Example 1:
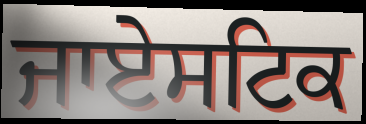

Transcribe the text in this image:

ਜਾਏਸਟਿਕ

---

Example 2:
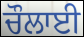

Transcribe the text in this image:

ਚੌਲਾਈ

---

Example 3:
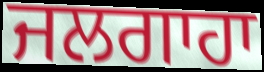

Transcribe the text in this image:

ਜਲਗਾਹਾ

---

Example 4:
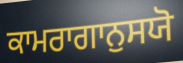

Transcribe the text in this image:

ਕਾਮਰਾਗਾਨੁਸਯੋ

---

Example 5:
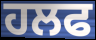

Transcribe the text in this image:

ਹਲਫ